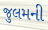
જુલમની